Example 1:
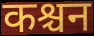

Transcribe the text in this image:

कश्चन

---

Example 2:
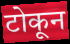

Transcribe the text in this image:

टोकून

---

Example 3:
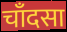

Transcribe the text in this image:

चाँदसा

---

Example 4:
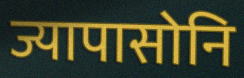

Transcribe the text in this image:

ज्यापासोनि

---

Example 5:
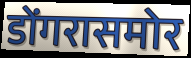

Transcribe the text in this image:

डोंगरासमोर